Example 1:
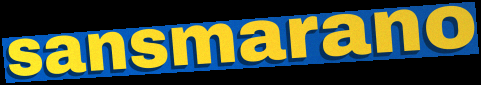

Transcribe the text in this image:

sansmarano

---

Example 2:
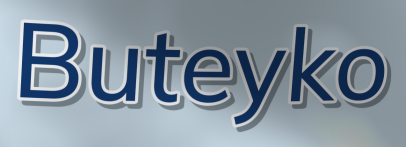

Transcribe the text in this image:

Buteyko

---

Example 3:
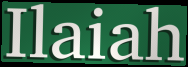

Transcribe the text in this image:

Ilaiah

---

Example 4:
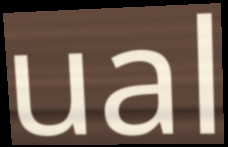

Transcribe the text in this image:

ual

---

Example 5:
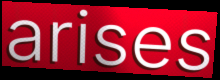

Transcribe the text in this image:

arises